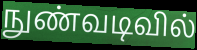
நுண்வடிவில்